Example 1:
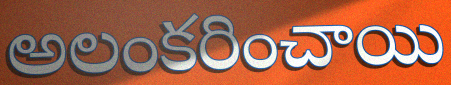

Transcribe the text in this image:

అలంకరించాయి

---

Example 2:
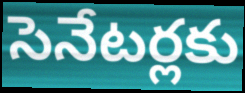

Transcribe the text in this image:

సెనేటర్లకు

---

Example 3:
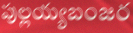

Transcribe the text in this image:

పుల్లయ్యబంజర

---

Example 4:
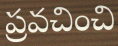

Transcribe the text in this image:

ప్రవచించి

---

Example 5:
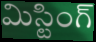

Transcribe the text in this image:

మిస్టింగ్